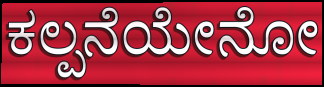
ಕಲ್ಪನೆಯೇನೋ